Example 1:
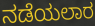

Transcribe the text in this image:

ನಡೆಯಲಾರ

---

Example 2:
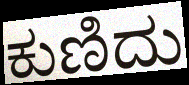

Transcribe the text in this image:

ಕುಣಿದು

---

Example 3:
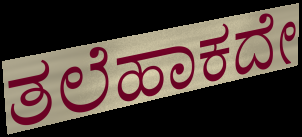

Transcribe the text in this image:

ತಲೆಹಾಕದೇ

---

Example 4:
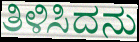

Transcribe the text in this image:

ತಿಳಿಸಿದನು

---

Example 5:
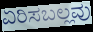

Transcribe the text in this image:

ಏರಿಸಬಲ್ಲವು